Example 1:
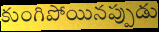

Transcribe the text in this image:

కుంగిపోయినప్పుడు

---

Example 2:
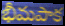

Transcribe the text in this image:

భీమపాక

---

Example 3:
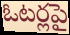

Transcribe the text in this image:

ఓటర్లపై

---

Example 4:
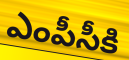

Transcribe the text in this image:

ఎంపీసీకి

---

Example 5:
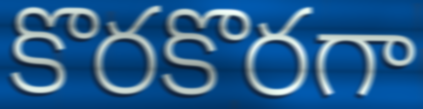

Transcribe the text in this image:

కొరకొరగా